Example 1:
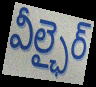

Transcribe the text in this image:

వీల్ఛైర్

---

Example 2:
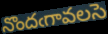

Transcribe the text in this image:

నొందఁగావలసె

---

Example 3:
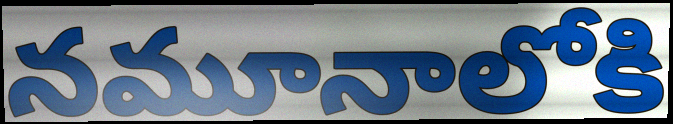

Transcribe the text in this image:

నమూనాలోకి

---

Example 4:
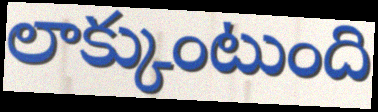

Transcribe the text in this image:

లాక్కుంటుంది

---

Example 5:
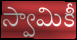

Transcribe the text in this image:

స్వామికీ